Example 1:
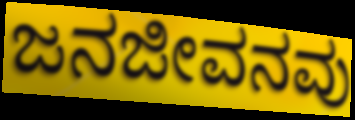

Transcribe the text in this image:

ಜನಜೀವನವು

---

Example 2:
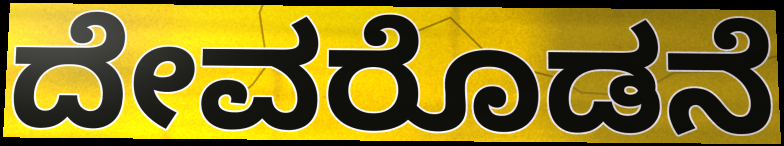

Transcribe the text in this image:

ದೇವರೊಡನೆ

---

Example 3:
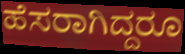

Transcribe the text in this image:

ಹೆಸರಾಗಿದ್ದರೂ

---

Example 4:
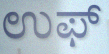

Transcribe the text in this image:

ಉಫ್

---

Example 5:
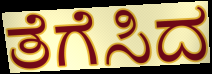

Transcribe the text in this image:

ತೆಗೆಸಿದ